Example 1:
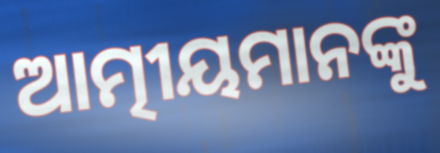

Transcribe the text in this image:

ଆତ୍ମୀୟମାନଙ୍କୁ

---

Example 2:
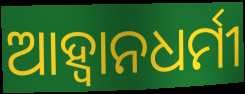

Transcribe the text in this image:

ଆହ୍ବାନଧର୍ମୀ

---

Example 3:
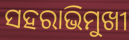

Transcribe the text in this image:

ସହରାଭିମୁଖୀ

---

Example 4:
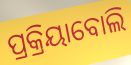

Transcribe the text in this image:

ପ୍ରକ୍ରିୟାବୋଲି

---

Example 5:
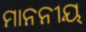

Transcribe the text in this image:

ମାନନୀୟ